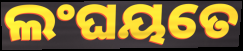
ଲଂଘୟତେ